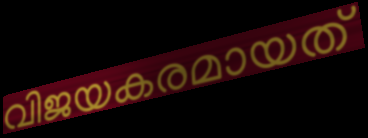
വിജയകരമായത്